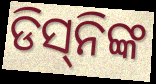
ଡିସ୍‌ନିଙ୍କ